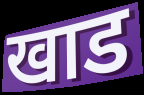
खाड